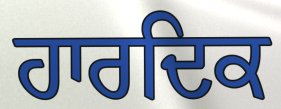
ਹਾਰਦਿਕ